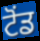
ਟੋਂਡ